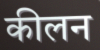
कीलन